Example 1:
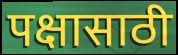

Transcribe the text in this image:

पक्षासाठी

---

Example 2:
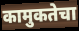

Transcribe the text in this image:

कामुकतेचा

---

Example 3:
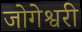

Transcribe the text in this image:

जोगेश्वरी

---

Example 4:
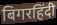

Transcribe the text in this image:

बिगरहिंदी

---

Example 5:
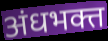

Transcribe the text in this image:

अंधभक्त